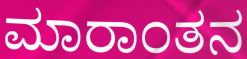
ಮಾರಾಂತನ